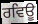
ਰਵਿਊ